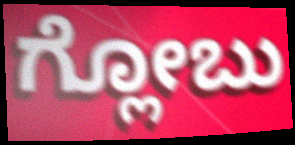
ಗ್ಲೋಬು